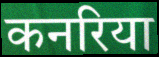
कनरिया